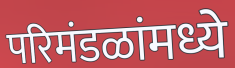
परिमंडळांमध्ये